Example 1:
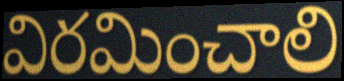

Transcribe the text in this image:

విరమించాలి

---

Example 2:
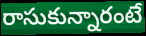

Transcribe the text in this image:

రాసుకున్నారంటే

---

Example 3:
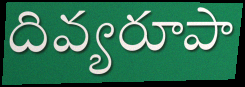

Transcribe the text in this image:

దివ్యరూపా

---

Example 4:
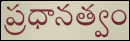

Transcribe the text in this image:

ప్రధానత్వం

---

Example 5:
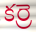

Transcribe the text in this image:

కర్రె